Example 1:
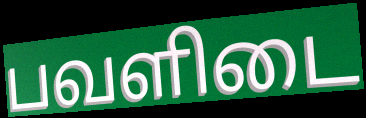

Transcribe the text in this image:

பவளிடை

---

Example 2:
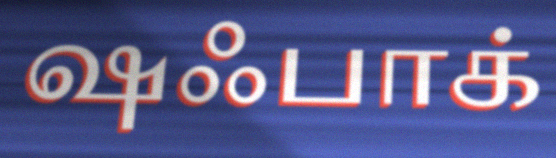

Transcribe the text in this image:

ஷஃபாக்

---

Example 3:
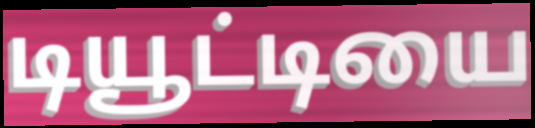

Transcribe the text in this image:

டியூட்டியை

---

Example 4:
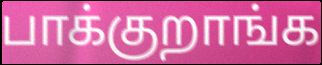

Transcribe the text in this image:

பாக்குறாங்க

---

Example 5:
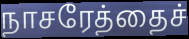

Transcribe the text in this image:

நாசரேத்தைச்